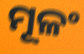
ମୂଳଂ